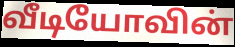
வீடியோவின்